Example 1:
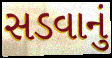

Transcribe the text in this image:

સડવાનું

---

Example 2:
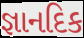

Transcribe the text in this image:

જ્ઞાનદિક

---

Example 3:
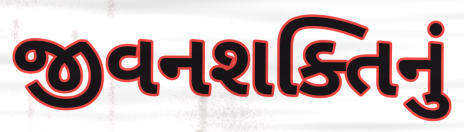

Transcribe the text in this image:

જીવનશક્તિનું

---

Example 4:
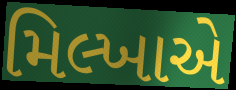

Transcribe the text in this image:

મિલ્ખાએ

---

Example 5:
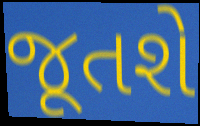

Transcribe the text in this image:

જૂતશે